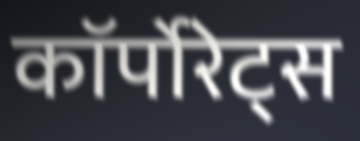
कॉर्पोरेट्स